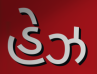
હેઝ